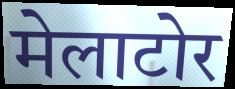
मेलाटोर